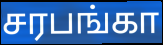
சரபங்கா